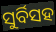
ସୁର୍ବିସହ